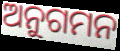
ଅନୁଗମନ